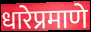
धारेप्रमाणे